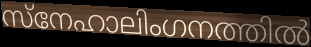
സ്നേഹാലിംഗനത്തിൽ